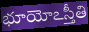
భూయోఽస్తీతి